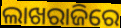
ଲାଖରାଜିରେ